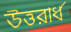
উত্তরার্ধ